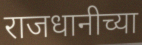
राजधानीच्या